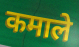
कमाले